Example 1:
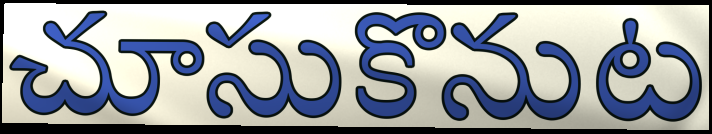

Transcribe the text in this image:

చూసుకొనుట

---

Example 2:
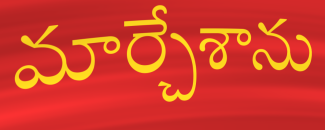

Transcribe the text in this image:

మార్చేశాను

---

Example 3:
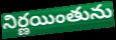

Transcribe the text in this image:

నిర్ణయింతును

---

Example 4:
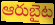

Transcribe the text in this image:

ఆరుబైట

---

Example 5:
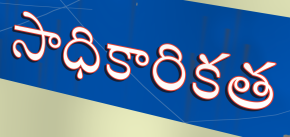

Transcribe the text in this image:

సాధికారికత